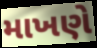
માખણે